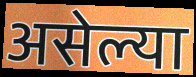
असेल्या